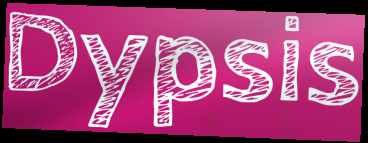
Dypsis